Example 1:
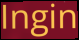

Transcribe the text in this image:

Ingin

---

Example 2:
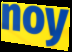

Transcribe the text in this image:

noy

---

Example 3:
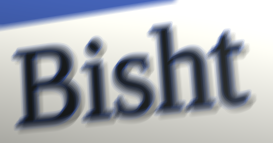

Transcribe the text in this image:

Bisht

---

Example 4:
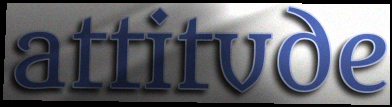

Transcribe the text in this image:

attitude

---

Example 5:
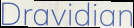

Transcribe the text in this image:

Dravidian